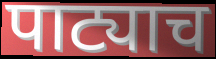
पाट्याच